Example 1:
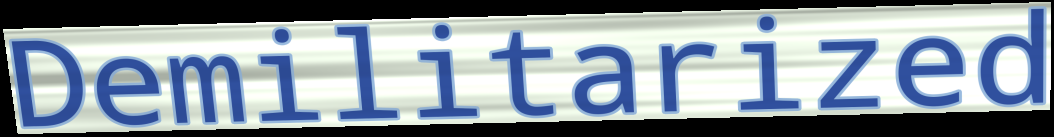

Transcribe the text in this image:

Demilitarized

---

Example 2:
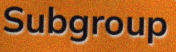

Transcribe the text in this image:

Subgroup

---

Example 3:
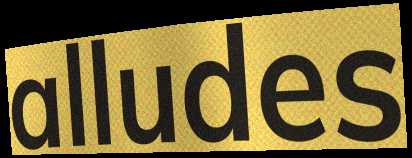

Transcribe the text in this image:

alludes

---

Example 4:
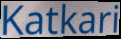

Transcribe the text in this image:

Katkari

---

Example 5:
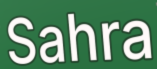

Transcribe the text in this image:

Sahra